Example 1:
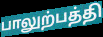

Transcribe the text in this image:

பாலுற்பத்தி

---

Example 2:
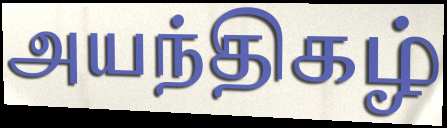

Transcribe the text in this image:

அயந்திகழ்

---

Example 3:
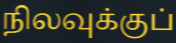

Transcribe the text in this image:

நிலவுக்குப்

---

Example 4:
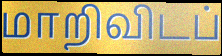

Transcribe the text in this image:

மாறிவிடப்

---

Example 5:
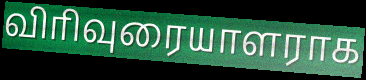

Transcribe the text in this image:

விரிவுரையாளராக